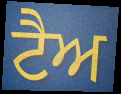
ਟੈਅ